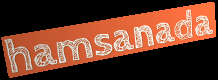
hamsanada